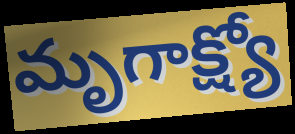
మృగాక్ష్యో